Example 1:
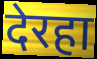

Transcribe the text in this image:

देरहा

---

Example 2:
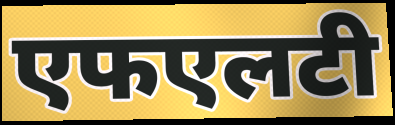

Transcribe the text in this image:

एफएलटी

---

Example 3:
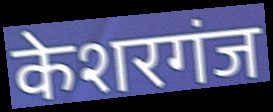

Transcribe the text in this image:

केशरगंज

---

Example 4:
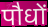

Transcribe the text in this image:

पौधों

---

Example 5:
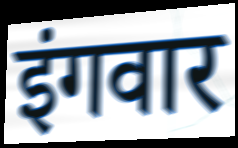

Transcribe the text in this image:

इंगवार